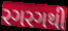
રગરગથી